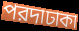
পরদাঢাকা